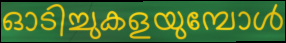
ഓടിച്ചുകളയുമ്പോൾ